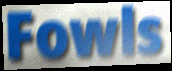
Fowls